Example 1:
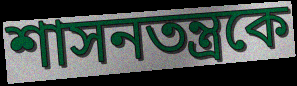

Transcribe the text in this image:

শাসনতন্ত্রকে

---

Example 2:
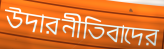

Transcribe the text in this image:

উদারনীতিবাদের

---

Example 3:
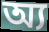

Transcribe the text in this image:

অ্য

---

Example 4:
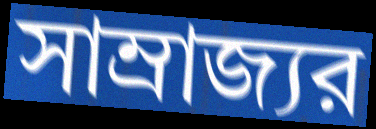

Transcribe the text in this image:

সাম্রাজ্যর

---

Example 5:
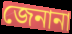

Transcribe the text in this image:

জেনানা